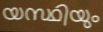
യസ്ഥിയും